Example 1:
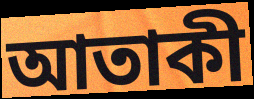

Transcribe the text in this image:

আতাকী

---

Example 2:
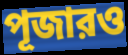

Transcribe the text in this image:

পূজারও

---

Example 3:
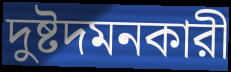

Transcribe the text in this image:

দুষ্টদমনকারী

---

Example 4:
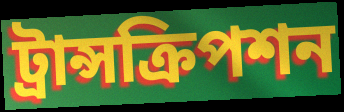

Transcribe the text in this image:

ট্রান্সক্রিপশন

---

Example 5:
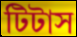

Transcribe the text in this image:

টিটাস